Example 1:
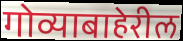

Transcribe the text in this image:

गोव्याबाहेरील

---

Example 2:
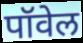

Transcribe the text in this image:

पॉवेल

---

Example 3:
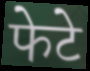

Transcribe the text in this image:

फेटे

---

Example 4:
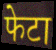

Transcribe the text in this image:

फेटा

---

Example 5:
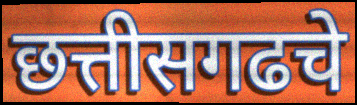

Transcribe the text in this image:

छत्तीसगढचे